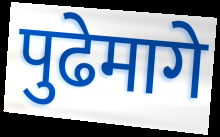
पुढेमागे